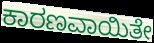
ಕಾರಣವಾಯಿತೇ